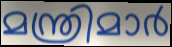
മന്ത്രിമാർ